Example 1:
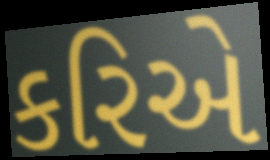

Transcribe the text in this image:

કરિએ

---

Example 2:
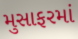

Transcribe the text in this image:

મુસાફરમાં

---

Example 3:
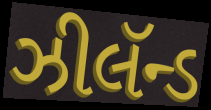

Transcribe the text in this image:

ઝીલૅન્ડ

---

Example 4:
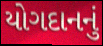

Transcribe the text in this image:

યોગદાનનું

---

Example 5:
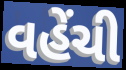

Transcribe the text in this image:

વહેંચી